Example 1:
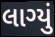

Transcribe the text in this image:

લાગ્યું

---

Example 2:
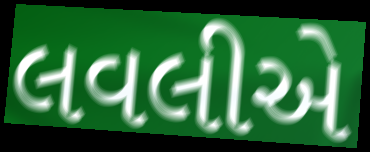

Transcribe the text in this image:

લવલીએ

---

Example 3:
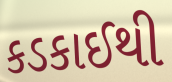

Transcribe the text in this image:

કડકાઈથી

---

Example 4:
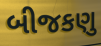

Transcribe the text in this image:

બીજકણુ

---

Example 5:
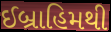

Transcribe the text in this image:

ઈબ્રાહિમથી